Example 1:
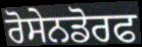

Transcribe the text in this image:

ਰੋਸੇਨਡੋਰਫ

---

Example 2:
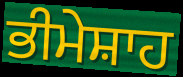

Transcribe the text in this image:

ਭੀਮੇਸ਼ਾਹ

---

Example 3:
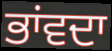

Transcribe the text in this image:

ਭਾਂਵਦਾ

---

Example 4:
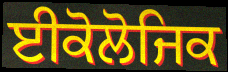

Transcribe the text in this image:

ਈਕੋਲੋਜਿਕ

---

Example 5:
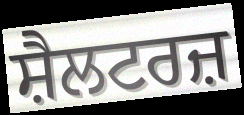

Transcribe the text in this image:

ਸ਼ੈਲਟਰਜ਼